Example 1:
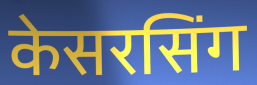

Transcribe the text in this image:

केसरसिंग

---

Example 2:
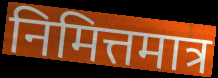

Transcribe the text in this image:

निमित्तमात्र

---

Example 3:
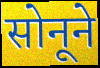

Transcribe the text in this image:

सोनूने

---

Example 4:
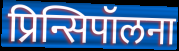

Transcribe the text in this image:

प्रिन्सिपॉलना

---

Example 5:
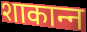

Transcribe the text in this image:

शाकान्न